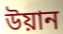
উয়ান